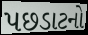
પછડાટનો